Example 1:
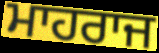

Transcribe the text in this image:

ਮਾਹਰਾਜ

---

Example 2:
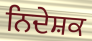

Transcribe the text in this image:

ਨਿਦੇਸ਼ਕ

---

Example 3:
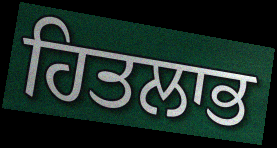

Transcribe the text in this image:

ਹਿਤਲਾਭ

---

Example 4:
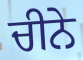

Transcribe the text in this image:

ਚੀਨੇ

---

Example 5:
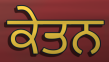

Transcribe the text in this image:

ਕੇਤਨ